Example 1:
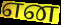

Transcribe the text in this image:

என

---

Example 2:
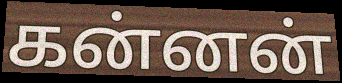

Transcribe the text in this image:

கன்னன்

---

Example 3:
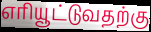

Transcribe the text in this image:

எரியூட்டுவதற்கு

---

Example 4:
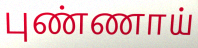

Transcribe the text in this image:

புண்ணாய்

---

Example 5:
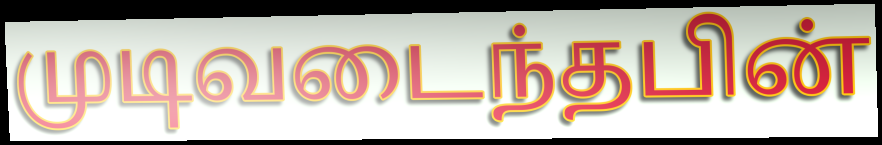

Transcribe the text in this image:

முடிவடைந்தபின்